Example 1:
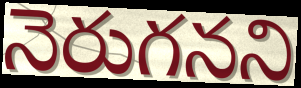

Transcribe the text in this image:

నెరుగనని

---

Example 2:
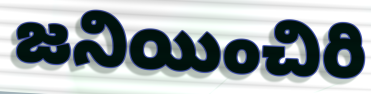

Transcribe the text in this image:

జనియించిరి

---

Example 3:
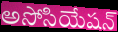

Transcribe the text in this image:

అసోసియేషన్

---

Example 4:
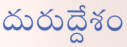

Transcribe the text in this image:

దురుద్దేశం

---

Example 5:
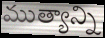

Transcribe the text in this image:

ముత్యాన్ని